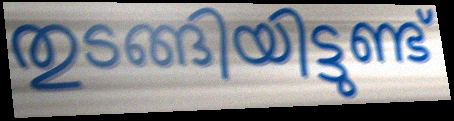
തുടങ്ങിയിട്ടുണ്ട്